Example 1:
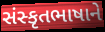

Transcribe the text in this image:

સંસ્કૃતભાષાને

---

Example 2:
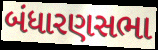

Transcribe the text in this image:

બંધારણસભા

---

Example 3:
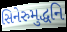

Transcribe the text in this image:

સિનેરુમુદ્ધનિ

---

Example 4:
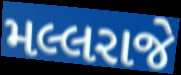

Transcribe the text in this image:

મલ્લરાજે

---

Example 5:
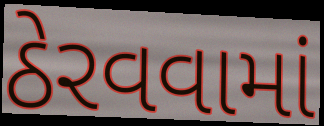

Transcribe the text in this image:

ઠેરવવામાં